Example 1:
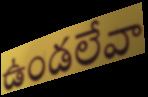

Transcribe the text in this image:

ఉండలేవా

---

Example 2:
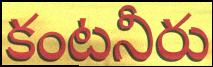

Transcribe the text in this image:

కంటనీరు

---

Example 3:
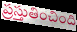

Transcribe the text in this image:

ప్రస్తుతించింది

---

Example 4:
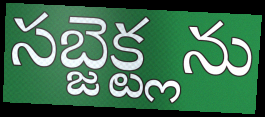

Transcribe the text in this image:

సబ్జెక్ట్లను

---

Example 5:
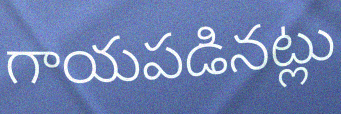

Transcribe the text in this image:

గాయపడినట్లు